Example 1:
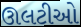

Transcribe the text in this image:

ઊલટીઓ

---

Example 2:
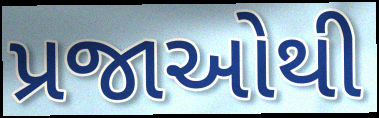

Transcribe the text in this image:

પ્રજાઓથી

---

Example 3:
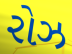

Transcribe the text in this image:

રોઝ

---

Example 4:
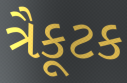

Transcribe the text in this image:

ત્રૈકૂટક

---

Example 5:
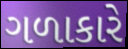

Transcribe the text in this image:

ગળાકારે